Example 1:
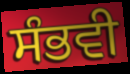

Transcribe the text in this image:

ਸੰਭਵੀ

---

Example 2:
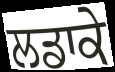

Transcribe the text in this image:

ਲਡਾਕੇ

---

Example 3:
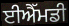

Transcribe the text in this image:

ਈਐੱਮਡੀ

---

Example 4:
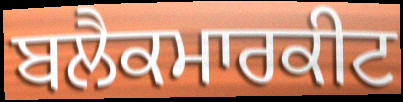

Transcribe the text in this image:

ਬਲੈਕਮਾਰਕੀਟ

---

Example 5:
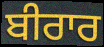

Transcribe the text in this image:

ਬੀਰਾਰ